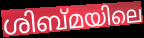
ശിബ്മയിലെ